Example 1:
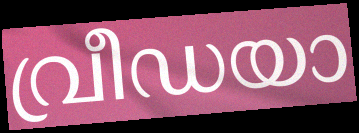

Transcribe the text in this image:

വ്രീഡയാ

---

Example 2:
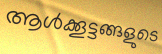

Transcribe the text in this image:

ആൾക്കൂട്ടങ്ങളുടെ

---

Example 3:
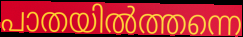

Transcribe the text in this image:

പാതയിൽത്തന്നെ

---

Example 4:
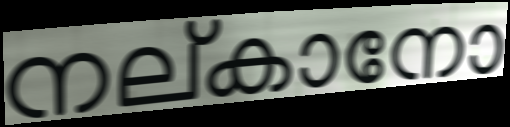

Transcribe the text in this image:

നല്കാനോ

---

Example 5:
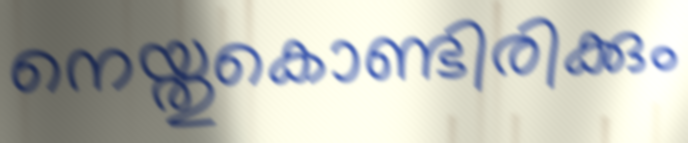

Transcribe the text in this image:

നെയ്തുകൊണ്ടിരിക്കും